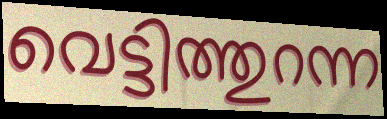
വെട്ടിത്തുറന്ന